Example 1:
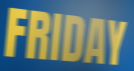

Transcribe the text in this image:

FRIDAY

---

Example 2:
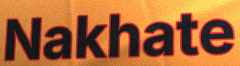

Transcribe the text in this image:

Nakhate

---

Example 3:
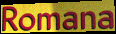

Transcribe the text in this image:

Romana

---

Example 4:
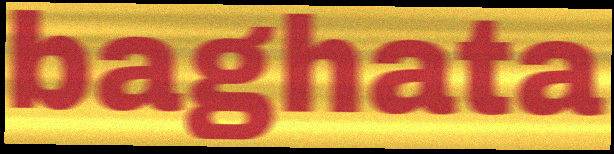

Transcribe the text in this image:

baghata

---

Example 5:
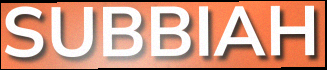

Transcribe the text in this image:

SUBBIAH